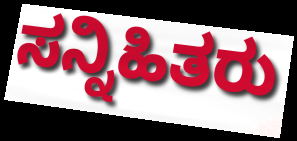
ಸನ್ನಿಹಿತರು